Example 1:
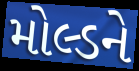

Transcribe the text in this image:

મોલ્ડને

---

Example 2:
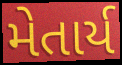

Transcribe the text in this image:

મેતાર્ય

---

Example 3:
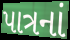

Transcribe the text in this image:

પાત્રનાં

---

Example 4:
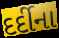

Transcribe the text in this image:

દર્દીના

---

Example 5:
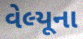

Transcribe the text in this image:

વેલ્યૂના